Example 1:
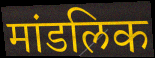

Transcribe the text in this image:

मांडलिक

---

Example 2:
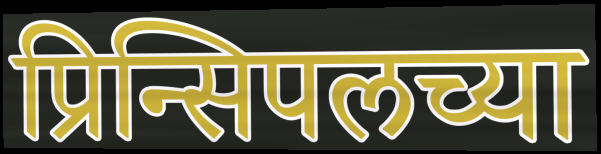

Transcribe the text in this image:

प्रिन्सिपलच्या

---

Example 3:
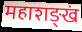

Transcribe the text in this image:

महाशङ्खं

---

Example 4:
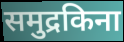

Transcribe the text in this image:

समुद्रकिना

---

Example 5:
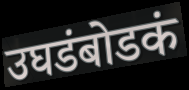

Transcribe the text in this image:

उघडंबोडकं